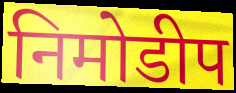
निमोडीप